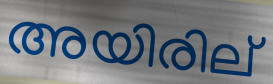
അയിരില്